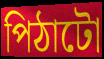
পিঠাটো